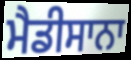
ਮੈਡੀਸਾਨਾ